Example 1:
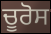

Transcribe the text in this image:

ਚੂਰੋਸ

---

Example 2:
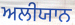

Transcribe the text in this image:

ਅਲੀਯਾਨ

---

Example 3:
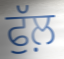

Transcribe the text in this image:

ਫੁੱਲ਼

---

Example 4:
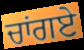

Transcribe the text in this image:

ਚਾਂਗਏ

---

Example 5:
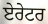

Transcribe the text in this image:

ਏਰੇਟਰ